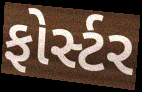
ફોર્સ્ટર